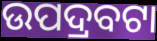
ଉପଦ୍ରବଟା